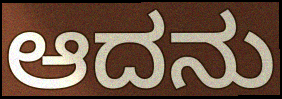
ಆದನು